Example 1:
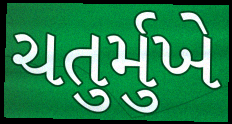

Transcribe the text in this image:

ચતુર્મુખે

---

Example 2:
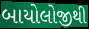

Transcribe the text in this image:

બાયોલોજીથી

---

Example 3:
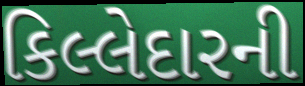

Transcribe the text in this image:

કિલ્લેદારની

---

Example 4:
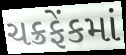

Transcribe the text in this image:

ચક્રફેંકમાં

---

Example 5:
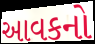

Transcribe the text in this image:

આવકનો